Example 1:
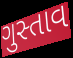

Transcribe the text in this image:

ગુસ્તાવ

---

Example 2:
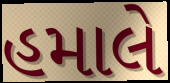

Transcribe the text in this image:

હમાલે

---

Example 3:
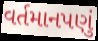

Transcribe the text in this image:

વર્તમાનપણું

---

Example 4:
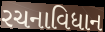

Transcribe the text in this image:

રચનાવિધાન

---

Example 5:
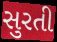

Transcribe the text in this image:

સુરતી